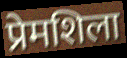
प्रेमशिला